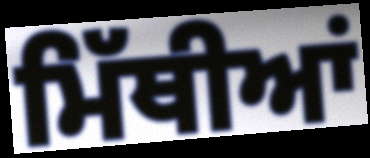
ਮਿੱਥੀਆਂ